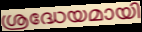
ശ്രദ്ധേയമായി